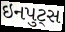
ઇનપુટ્સ